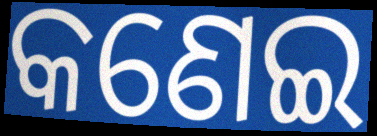
କଣେଇ